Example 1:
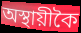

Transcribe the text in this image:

অস্থায়ীকৈ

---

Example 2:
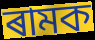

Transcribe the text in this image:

ৰামক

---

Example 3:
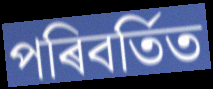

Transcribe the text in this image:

পৰিবৰ্তিত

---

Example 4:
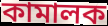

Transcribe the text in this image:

কামালক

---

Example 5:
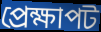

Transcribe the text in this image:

প্ৰেক্ষাপট